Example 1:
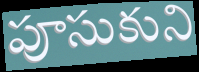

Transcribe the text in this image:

పూసుకుని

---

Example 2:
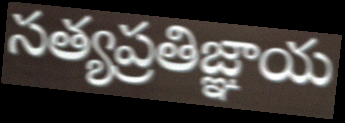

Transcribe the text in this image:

సత్యప్రతిజ్ఞాయ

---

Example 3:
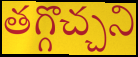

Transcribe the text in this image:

తగ్గొచ్చని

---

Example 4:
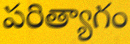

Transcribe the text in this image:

పరిత్యాగం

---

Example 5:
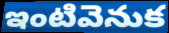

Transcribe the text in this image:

ఇంటివెనుక